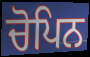
ਚੋਪਿਨ